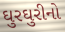
ઘુરઘુરીનો